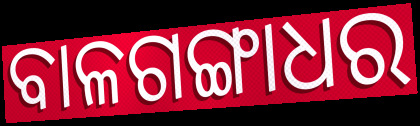
ବାଳଗଙ୍ଗାଧର